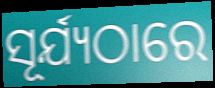
ସୂର୍ଯ୍ୟଠାରେ